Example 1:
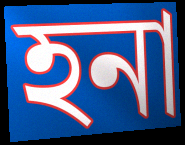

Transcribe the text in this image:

হনা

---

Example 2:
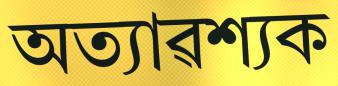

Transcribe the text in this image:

অত্যাৱশ্যক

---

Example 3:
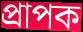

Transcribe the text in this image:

প্ৰাপক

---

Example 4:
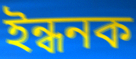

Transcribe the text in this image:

ইন্ধনক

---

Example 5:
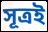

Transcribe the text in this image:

সূত্ৰই